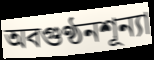
অবগুণ্ঠনশূন্যা